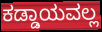
ಕಡ್ಡಾಯವಲ್ಲ